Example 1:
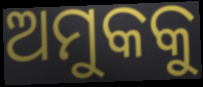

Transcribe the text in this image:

ଅମୁକକୁ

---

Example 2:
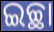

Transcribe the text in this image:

ଇଚ୍ଛା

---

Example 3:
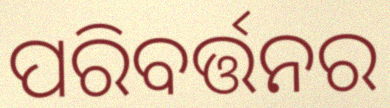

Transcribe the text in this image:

ପରିବର୍ତ୍ତନର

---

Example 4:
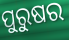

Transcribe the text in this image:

ପୁରୁଷର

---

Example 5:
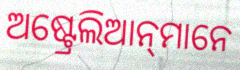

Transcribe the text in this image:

ଅଷ୍ଟ୍ରେଲିଆନ୍‌ମାନେ